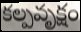
కల్పవృక్షం